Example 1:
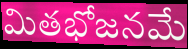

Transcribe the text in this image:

మితభోజనమే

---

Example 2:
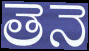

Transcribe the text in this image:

తెనె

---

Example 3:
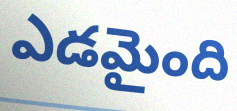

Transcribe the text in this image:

ఎడమైంది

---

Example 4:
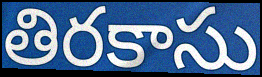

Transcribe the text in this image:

తిరకాసు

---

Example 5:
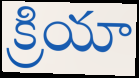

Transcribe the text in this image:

క్రియా